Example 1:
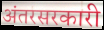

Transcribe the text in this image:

अंतरसरकारी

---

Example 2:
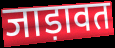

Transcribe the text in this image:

जाड़ावत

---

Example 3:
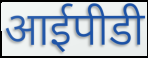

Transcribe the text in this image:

आईपीडी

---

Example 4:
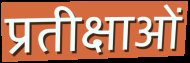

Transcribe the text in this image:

प्रतीक्षाओं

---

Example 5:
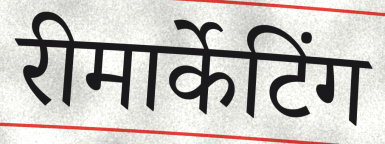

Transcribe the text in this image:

रीमार्केटिंग